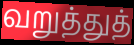
வறுத்துத்